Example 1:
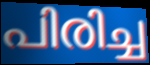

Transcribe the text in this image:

പിരിച്ച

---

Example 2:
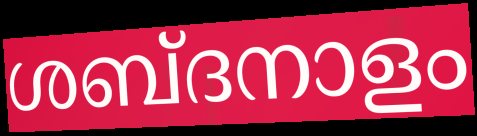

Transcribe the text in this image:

ശബ്ദനാളം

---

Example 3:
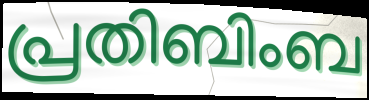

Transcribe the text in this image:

പ്രതിബിംബ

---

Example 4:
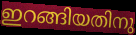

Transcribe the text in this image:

ഇറങ്ങിയതിനു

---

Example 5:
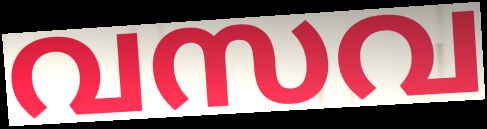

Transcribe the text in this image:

വസവ